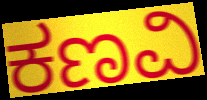
ಕಣವಿ